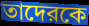
তাদেরকে